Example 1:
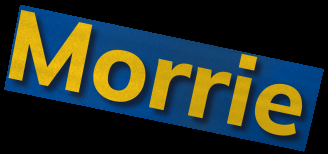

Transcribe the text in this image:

Morrie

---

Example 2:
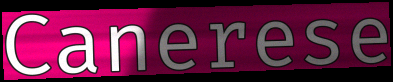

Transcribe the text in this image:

Canerese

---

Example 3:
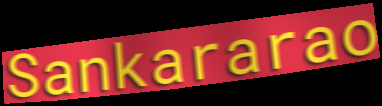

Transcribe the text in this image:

Sankararao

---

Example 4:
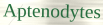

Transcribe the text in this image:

Aptenodytes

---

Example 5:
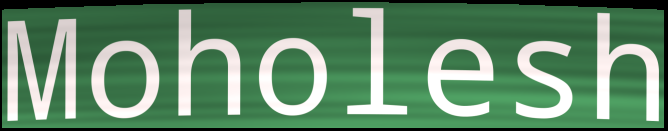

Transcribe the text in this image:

Moholesh